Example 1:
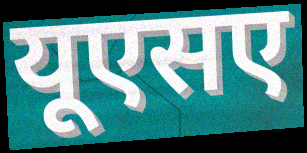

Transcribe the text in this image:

यूएसए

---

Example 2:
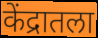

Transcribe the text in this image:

केंद्रातला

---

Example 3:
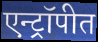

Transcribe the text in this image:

एन्ट्रॉपीत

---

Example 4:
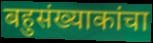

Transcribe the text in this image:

बहुसंख्याकांचा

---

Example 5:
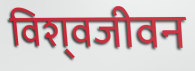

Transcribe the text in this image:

विश्वजीवन